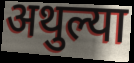
अथुल्या